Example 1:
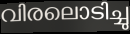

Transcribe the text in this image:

വിരലൊടിച്ചു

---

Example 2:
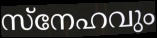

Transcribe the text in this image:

സ്നേഹവും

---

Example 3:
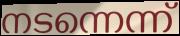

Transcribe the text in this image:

നടന്നെന്ന്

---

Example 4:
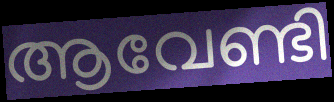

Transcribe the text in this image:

ആവേണ്ടി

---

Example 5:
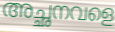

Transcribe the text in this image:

അച്ഛനവളെ